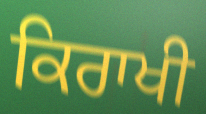
ਕਿਰਾਖੀ